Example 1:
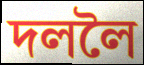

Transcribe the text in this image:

দললৈ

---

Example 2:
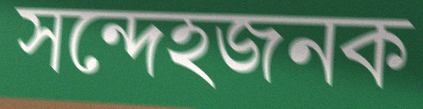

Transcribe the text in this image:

সন্দেহজনক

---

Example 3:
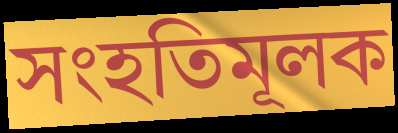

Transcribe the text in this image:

সংহতিমূলক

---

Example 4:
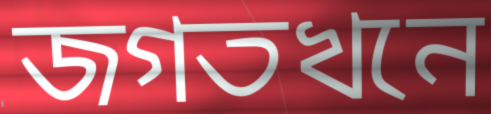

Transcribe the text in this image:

জগতখনে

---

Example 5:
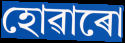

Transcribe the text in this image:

হোৱাৰো